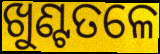
ଖୁଣ୍ଟତଳେ